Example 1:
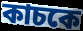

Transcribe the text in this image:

কাচকে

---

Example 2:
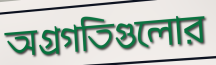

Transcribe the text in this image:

অগ্রগতিগুলোর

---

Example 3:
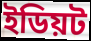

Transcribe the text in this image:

ইডিয়ট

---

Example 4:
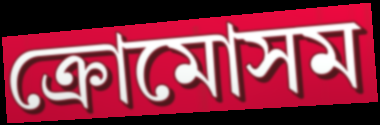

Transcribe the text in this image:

ক্রোমোসম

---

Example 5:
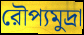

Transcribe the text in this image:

রৌপ্যমুদ্রা